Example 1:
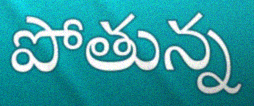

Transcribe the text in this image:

పోతున్న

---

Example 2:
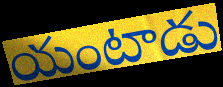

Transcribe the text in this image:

యంటాడు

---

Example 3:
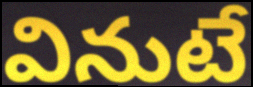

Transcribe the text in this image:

వినుటే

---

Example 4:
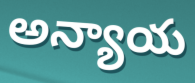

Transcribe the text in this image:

అన్యాయ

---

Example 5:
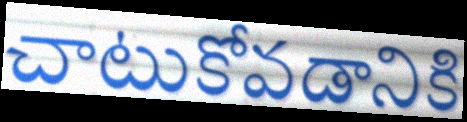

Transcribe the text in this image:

చాటుకోవడానికి